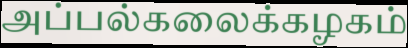
அப்பல்கலைக்கழகம்